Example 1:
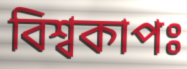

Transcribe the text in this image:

বিশ্বকাপঃ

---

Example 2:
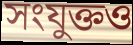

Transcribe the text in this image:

সংযুক্তও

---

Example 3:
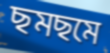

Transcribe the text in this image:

ছমছমে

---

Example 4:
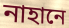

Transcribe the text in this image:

নাহানে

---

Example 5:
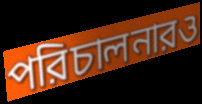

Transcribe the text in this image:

পরিচালনারও